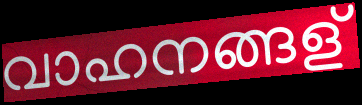
വാഹനങ്ങള്